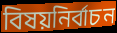
বিষয়নির্বাচন